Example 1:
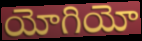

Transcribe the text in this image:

యోగియో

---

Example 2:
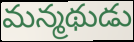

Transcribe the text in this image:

మన్మథుడు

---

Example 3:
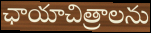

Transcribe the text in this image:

ఛాయాచిత్రాలను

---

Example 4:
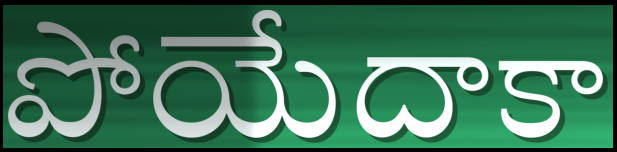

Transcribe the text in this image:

పోయేదాకా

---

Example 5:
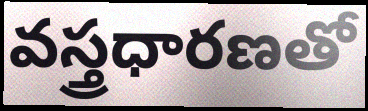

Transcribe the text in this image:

వస్త్రధారణతో